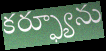
కర్ఫ్యూను